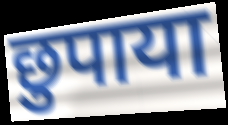
छुपाया